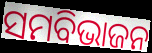
ସମବିଭାଜନ